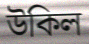
উকিল